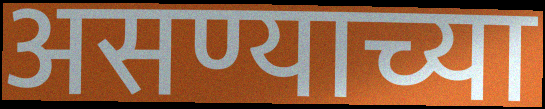
असण्याच्या